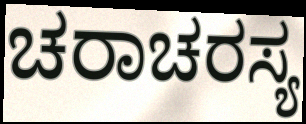
ಚರಾಚರಸ್ಯ